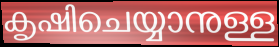
കൃഷിചെയ്യാനുള്ള